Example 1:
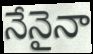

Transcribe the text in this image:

నేనైనా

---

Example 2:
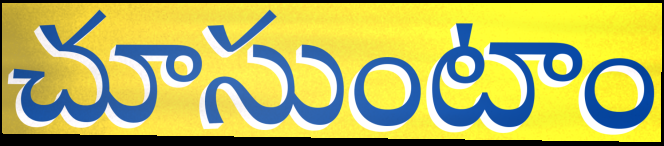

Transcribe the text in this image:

చూసుంటాం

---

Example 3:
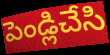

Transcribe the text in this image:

పెండ్లిచేసి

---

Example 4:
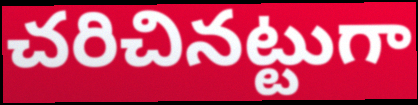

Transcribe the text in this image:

చరిచినట్టుగా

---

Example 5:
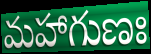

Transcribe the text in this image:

మహాగుణః